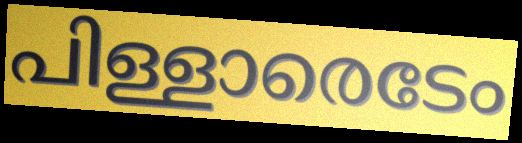
പിള്ളാരെടേം